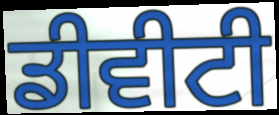
ਡੀਵੀਟੀ